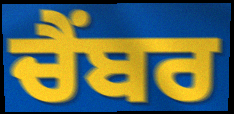
ਚੈਂਬਰ